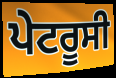
ਪੇਟਰੂਸੀ